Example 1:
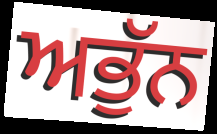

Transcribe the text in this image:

ਅਭੁੱਨ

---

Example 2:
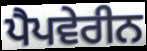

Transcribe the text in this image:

ਪੈਪਵੇਰੀਨ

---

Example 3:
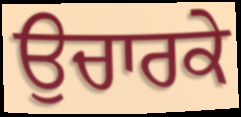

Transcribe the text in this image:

ਉਚਾਰਕੇ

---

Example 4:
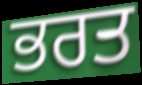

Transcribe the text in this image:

ਭਰਤ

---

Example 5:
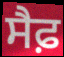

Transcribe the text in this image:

ਸੈਫ਼